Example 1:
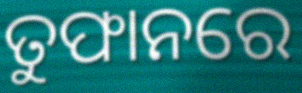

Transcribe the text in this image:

ତୁଫାନରେ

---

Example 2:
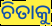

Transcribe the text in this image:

ଚିତାକୁ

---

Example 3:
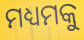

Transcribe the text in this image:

ମଧ୍ୟମକୁ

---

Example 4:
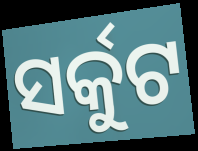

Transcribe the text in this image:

ସର୍କୁଟ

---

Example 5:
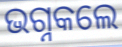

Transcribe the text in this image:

ଭଗ୍ନକଲେ